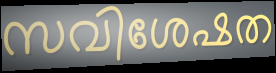
സവിശേഷത